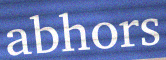
abhors